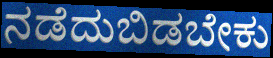
ನಡೆದುಬಿಡಬೇಕು